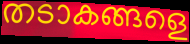
തടാകങ്ങളെ